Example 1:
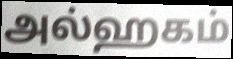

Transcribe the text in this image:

அல்ஹகம்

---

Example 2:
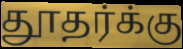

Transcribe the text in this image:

தூதர்க்கு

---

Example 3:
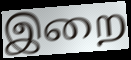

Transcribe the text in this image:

இறை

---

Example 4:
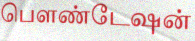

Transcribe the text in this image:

பௌண்டேஷன்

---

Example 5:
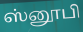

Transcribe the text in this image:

ஸ்னூபி